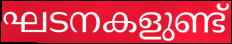
ഘടനകളുണ്ട്